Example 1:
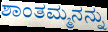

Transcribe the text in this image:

ಶಾಂತಮ್ಮನನ್ನು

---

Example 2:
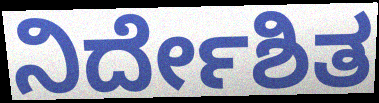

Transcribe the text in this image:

ನಿರ್ದೇಶಿತ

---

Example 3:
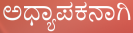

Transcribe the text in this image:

ಅಧ್ಯಾಪಕನಾಗಿ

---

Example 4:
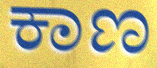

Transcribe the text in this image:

ಕಾಣ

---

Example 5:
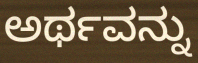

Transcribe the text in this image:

ಅರ್ಥವನ್ನು